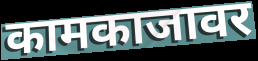
कामकाजावर